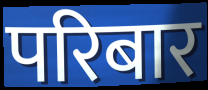
परिबार